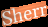
Sherr